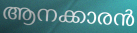
ആനക്കാരൻ